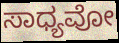
ಸಾಧ್ಯವೋ